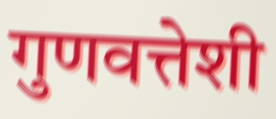
गुणवत्तेशी